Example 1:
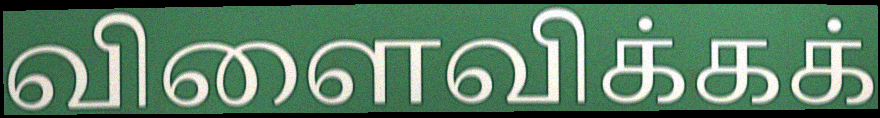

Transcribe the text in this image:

விளைவிக்கக்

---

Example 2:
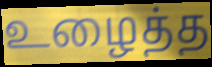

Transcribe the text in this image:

உழைத்த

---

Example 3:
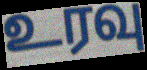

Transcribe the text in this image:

உரவு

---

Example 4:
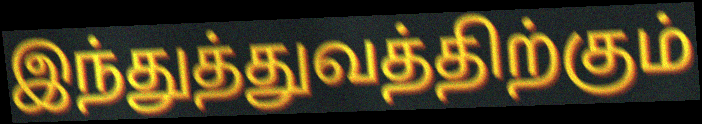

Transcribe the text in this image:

இந்துத்துவத்திற்கும்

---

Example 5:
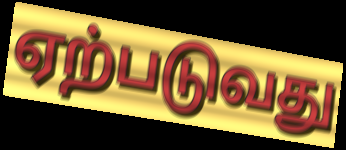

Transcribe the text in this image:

ஏற்படுவது